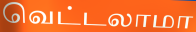
வெட்டலாமா